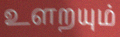
உளறயும்